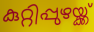
കുറ്റിപ്പുഴയ്ക്ക്